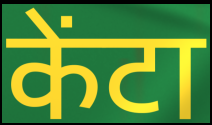
केंटा